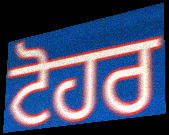
ਟੋਹਰ